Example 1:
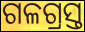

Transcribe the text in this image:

ଗଳଗ୍ରସ୍ତ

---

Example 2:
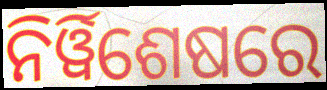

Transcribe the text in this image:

ନିର୍ୱିଶେଷରେ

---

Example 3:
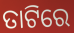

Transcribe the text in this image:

ତାଟିରେ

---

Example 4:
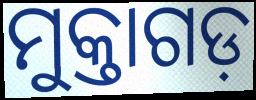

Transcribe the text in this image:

ମୁକ୍ତାଗଡ଼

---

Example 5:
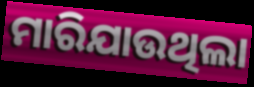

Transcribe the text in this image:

ମାରିଯାଉଥିଲା